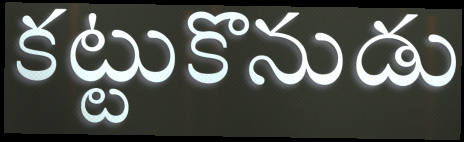
కట్టుకొనుడు